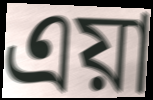
এয়া